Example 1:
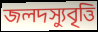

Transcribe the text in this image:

জলদস্যুবৃত্তি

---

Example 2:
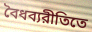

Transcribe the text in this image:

বৈধব্যরীতিতে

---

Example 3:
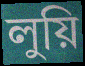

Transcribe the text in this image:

লুয়ি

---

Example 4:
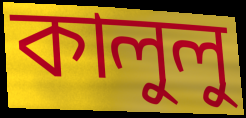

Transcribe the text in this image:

কালুলু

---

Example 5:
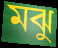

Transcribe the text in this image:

মঝু